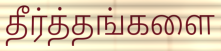
தீர்த்தங்களை